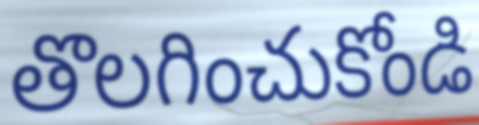
తొలగించుకోండి